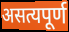
असत्यपूर्ण